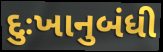
દુઃખાનુબંધી